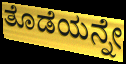
ತೊಡೆಯನ್ನೇ